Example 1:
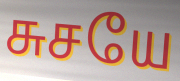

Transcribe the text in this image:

சுசயே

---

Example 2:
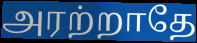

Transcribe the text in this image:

அரற்றாதே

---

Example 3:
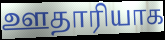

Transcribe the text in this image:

ஊதாரியாக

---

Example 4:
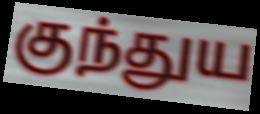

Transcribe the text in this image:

குந்துய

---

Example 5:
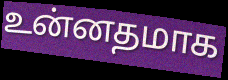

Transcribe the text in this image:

உன்னதமாக